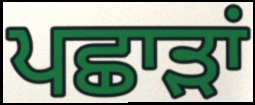
ਪਛਾੜਾਂ